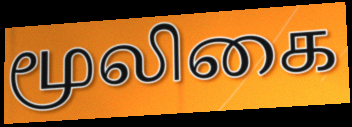
மூலிகை